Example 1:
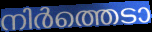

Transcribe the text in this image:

നിർത്തെടാ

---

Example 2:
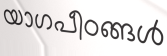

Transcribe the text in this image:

യാഗപീഠങ്ങൾ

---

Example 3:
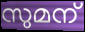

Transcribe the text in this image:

സുമന്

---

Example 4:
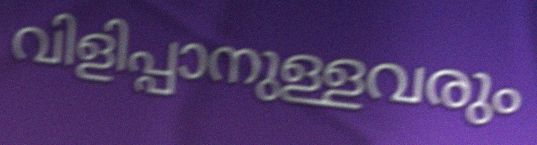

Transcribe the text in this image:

വിളിപ്പാനുള്ളവരും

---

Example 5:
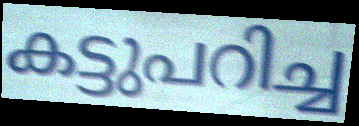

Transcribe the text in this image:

കട്ടുപറിച്ച